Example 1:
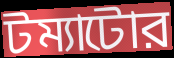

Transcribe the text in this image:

টম্যাটোর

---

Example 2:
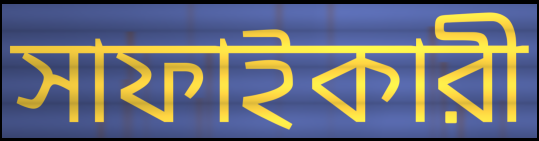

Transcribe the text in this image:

সাফাইকারী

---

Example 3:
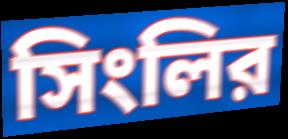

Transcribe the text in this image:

সিংলির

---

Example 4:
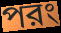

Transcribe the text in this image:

পরং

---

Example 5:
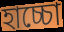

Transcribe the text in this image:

হাচ্চো